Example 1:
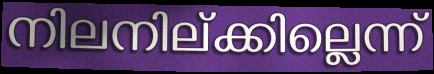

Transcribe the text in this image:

നിലനില്ക്കില്ലെന്ന്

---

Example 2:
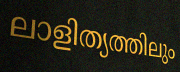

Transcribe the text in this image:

ലാളിത്യത്തിലും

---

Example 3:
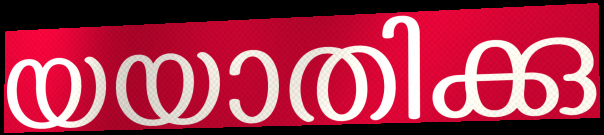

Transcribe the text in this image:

യയാതിക്കു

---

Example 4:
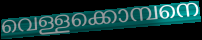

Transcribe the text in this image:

വെള്ളക്കൊമ്പനെ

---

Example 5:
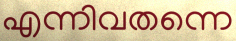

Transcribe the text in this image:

എന്നിവതന്നെ